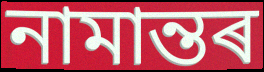
নামান্তৰ